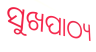
ସୁଖପାଠ୍ୟ